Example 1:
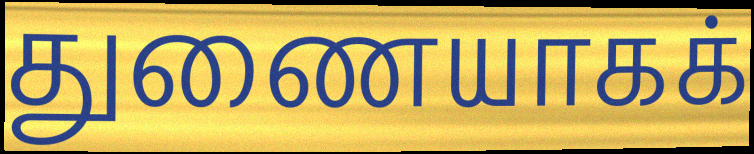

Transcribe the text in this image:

துணையாகக்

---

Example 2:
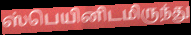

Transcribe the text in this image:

ஸ்பெயினிடமிருந்து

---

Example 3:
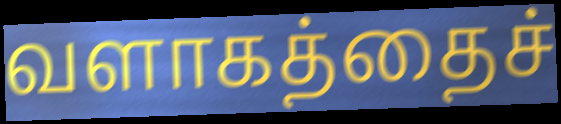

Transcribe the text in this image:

வளாகத்தைச்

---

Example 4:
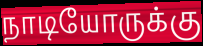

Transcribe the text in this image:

நாடியோருக்கு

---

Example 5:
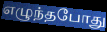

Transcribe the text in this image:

எழுந்தபோது